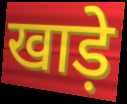
खाड़े